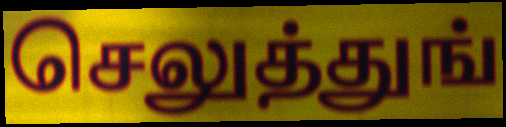
செலுத்துங்